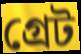
গ্ৰেট